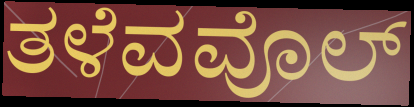
ತಳೆವವೊಲ್